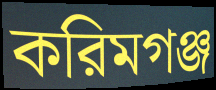
করিমগঞ্জ